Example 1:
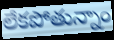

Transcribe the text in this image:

లేకపోతున్నాం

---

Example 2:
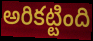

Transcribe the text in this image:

అరికట్టింది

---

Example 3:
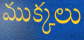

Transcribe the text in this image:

ముక్కలు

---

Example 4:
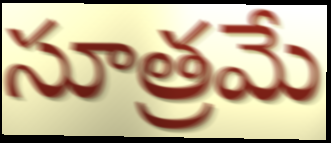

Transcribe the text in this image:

సూత్రమే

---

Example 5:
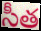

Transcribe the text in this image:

సీత